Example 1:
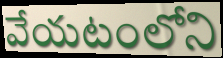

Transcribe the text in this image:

వేయటంలోని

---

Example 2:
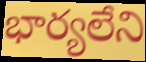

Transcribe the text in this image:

భార్యలేని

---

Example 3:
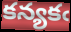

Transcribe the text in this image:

కన్యకఁ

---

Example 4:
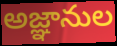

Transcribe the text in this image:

అజ్ఞానుల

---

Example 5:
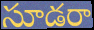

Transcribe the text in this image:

సూడరా